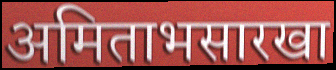
अमिताभसारखा